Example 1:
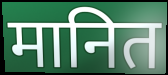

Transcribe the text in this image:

मानित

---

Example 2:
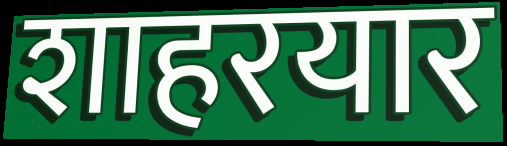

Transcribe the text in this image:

शाहरयार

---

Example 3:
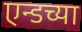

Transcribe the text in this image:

एन्डच्या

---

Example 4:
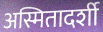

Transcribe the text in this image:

अस्मितादर्शी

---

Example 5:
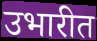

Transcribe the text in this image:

उभारीत